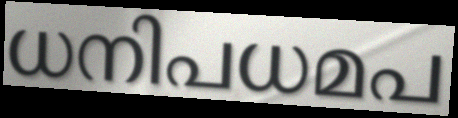
ധനിപധമപ